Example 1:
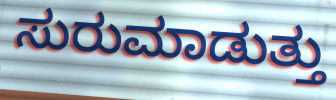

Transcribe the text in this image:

ಸುರುಮಾಡುತ್ತು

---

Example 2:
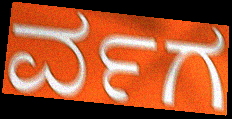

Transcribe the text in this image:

ರ್ವಗ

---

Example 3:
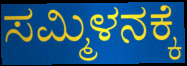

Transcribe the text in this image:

ಸಮ್ಮಿಳನಕ್ಕೆ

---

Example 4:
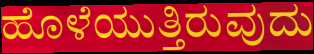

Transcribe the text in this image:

ಹೊಳೆಯುತ್ತಿರುವುದು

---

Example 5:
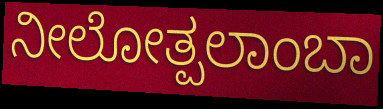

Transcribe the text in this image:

ನೀಲೋತ್ಪಲಾಂಬಾ